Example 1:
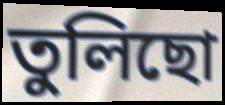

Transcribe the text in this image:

তুলিছো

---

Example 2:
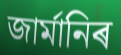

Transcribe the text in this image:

জাৰ্মানিৰ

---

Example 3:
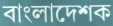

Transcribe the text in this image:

বাংলাদেশক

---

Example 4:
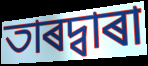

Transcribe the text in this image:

তাৰদ্বাৰা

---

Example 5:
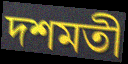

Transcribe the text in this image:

দশমতী